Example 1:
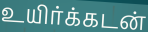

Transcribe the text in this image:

உயிர்க்கடன்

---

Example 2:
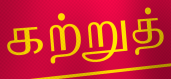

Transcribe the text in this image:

கற்றுத்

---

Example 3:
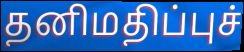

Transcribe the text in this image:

தனிமதிப்புச்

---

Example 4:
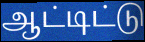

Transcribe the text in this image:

ஆட்டிட்டு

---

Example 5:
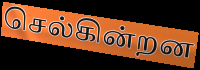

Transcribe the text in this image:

செல்கின்றன